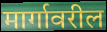
मार्गावरील